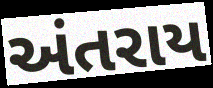
અંતરાય